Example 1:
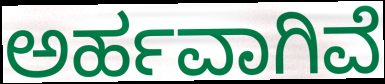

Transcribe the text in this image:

ಅರ್ಹವಾಗಿವೆ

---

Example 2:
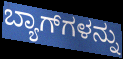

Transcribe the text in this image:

ಬ್ಯಾಗ್‍ಗಳನ್ನು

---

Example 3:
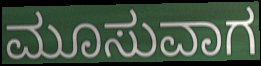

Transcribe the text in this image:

ಮೂಸುವಾಗ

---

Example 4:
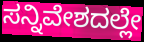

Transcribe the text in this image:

ಸನ್ನಿವೇಶದಲ್ಲೇ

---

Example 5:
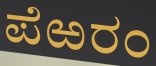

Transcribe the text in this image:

ಪೆಱರಂ